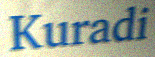
Kuradi